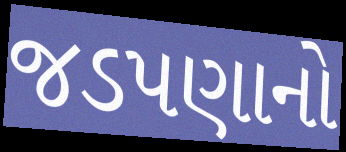
જડપણાનો